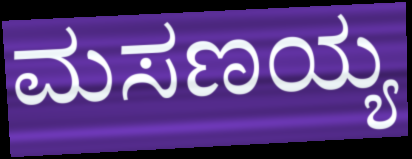
ಮಸಣಯ್ಯ